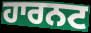
ਹਾਰਨਟ